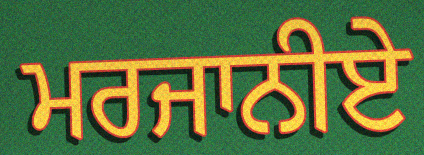
ਮਰਜਾਨੀਏ